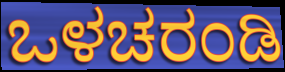
ಒಳಚರಂಡಿ